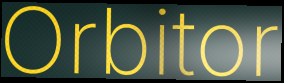
Orbitor